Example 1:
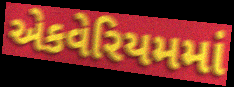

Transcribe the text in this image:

એકવેરિયમમાં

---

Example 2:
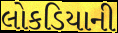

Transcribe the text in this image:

લોકડિયાની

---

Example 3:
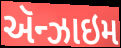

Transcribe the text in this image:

ઍન્ઝાઇમ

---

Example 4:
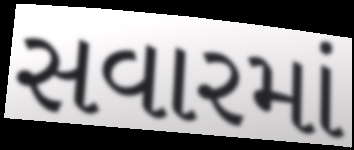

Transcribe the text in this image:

સવારમાં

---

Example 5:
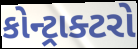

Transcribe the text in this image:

કોન્ટ્રાક્ટરો